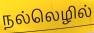
நல்லெழில்